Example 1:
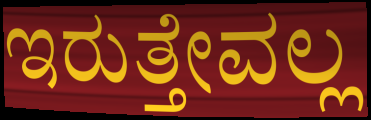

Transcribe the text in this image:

ಇರುತ್ತೇವಲ್ಲ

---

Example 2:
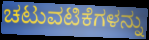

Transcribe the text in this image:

ಚಟುವಟಿಕೆಗಳನ್ನು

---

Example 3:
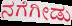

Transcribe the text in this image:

ನಗೆಗೀಡು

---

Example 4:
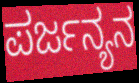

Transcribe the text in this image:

ಪರ್ಜನ್ಯನ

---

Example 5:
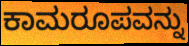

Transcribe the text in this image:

ಕಾಮರೂಪವನ್ನು